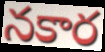
నకార